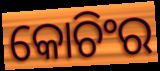
କୋଚିଂର